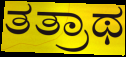
ತತ್ರಾಥ